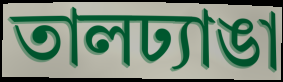
তালঢ্যাঙা